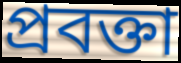
প্ৰবক্তা